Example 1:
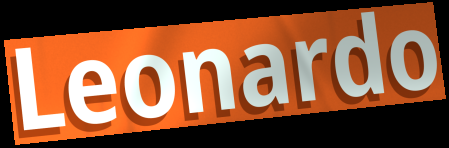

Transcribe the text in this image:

Leonardo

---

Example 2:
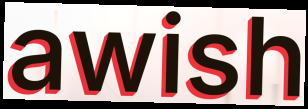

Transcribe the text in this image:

awish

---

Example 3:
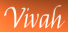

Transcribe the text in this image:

Vivah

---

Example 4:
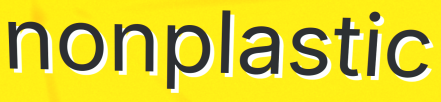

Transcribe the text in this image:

nonplastic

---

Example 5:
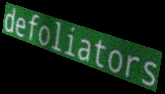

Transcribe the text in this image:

defoliators